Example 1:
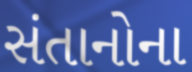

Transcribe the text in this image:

સંતાનોના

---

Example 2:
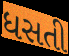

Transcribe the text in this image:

ધસતી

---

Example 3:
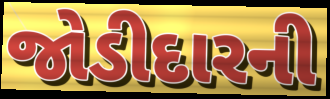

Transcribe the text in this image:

જોડીદારની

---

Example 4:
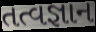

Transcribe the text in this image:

તત્વજ્ઞાન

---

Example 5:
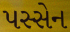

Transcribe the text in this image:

પસ્સેન